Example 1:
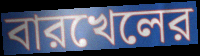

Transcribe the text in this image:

বারখেলের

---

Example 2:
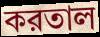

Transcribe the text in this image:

করতাল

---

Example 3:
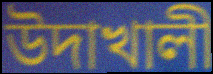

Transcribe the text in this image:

উদাখালী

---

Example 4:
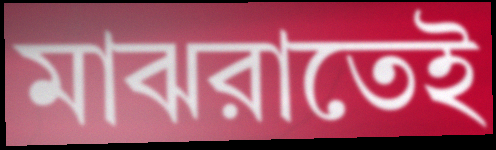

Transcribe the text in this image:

মাঝরাতেই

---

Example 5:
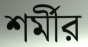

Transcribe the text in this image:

শর্মীর